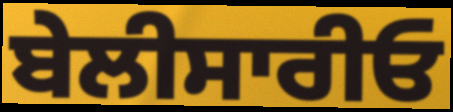
ਬੇਲੀਸਾਰੀਓ